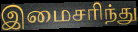
இமைசரிந்து